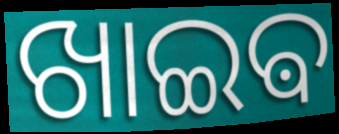
ଖାଇଵ